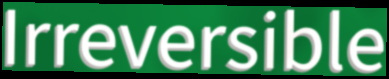
Irreversible